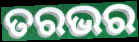
ତରଭର